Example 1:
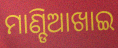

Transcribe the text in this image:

ମାଣ୍ଡିଆଖାଇ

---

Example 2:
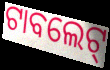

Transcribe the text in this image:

ଟାବଲେଟ୍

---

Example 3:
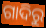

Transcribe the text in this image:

ଗାଦିରୁ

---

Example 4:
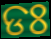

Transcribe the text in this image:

ଡଃ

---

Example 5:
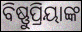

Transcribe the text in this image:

ବିଷ୍ଣୁପ୍ରିୟାଙ୍କ